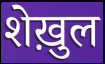
शेख़ुल